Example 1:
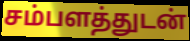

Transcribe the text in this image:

சம்பளத்துடன்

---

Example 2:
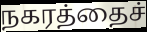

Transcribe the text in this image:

நகரத்தைச்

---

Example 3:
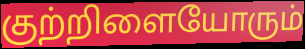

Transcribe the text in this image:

குற்றிளையோரும்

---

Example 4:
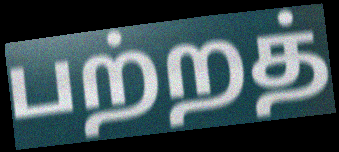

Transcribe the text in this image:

பற்றத்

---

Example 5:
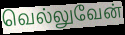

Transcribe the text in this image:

வெல்லுவேன்